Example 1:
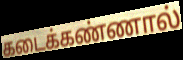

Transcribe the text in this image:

கடைக்கண்ணால்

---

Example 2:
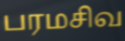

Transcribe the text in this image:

பரமசிவ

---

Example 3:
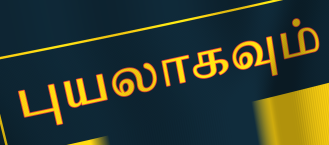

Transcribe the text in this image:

புயலாகவும்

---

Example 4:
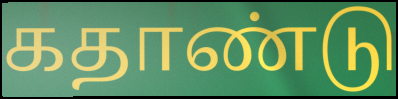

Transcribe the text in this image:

கதாண்டு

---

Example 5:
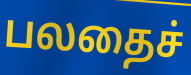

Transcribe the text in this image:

பலதைச்